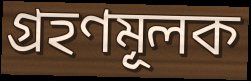
গ্রহণমূলক